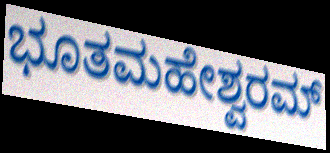
ಭೂತಮಹೇಶ್ವರಮ್